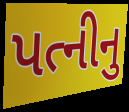
પત્નીનુ